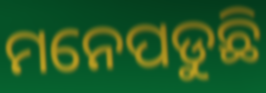
ମନେପଡୁଛି